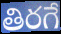
తిరగే